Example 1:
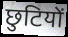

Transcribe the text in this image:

छुटियों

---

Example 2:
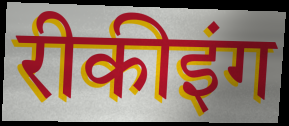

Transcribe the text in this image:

रीकीइंग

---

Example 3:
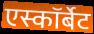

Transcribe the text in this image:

एस्कॉर्बेट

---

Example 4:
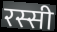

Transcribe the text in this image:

रस्‍सी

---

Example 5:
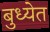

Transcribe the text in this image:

बुध्येत